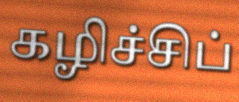
கழிச்சிப்